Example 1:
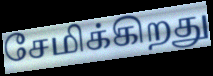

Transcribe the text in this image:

சேமிக்கிறது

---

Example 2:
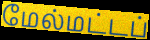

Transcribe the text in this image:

மேல்மட்டப்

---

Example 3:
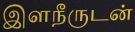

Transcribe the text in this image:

இளநீருடன்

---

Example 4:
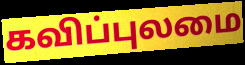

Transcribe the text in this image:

கவிப்புலமை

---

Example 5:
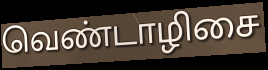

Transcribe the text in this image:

வெண்டாழிசை